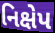
નિક્ષેપ